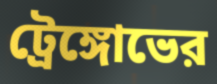
ট্রেঙ্গোভের